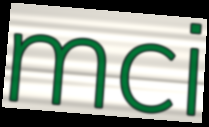
mci